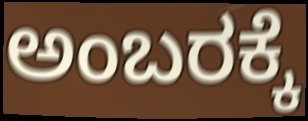
ಅಂಬರಕ್ಕೆ